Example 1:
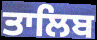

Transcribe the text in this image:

ਤਾਲਿਬ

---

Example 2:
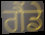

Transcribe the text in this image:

ਗੈਂਡੇ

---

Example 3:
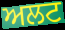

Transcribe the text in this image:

ਅਲਟ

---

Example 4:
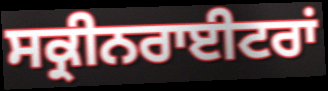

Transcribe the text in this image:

ਸਕ੍ਰੀਨਰਾਈਟਰਾਂ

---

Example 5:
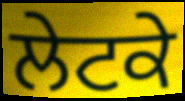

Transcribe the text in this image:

ਲੇਟਕੇ